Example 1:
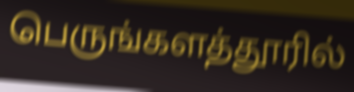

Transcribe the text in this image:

பெருங்களத்தூரில்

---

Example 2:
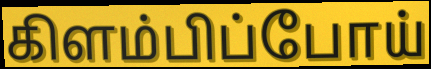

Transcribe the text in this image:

கிளம்பிப்போய்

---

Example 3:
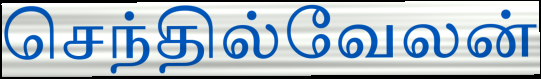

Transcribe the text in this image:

செந்தில்வேலன்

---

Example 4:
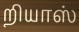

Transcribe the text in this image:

றியாஸ்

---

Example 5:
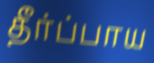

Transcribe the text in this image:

தீர்ப்பாய